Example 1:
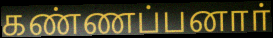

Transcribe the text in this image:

கண்ணப்பனார்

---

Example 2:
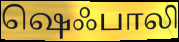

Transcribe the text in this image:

ஷெஃபாலி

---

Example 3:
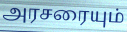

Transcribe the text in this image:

அரசரையும்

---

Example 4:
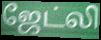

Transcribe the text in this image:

ஜேட்லி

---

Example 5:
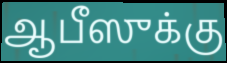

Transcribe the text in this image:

ஆபீஸுக்கு